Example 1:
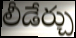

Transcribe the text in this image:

లీడేర్చు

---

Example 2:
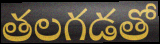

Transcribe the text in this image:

తలగడతో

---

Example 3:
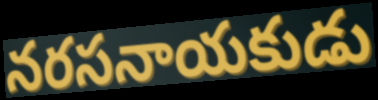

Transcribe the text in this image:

నరసనాయకుడు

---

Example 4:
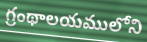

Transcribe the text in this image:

గ్రంథాలయములోని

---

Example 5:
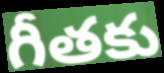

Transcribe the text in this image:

గీతకు